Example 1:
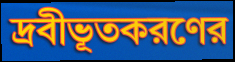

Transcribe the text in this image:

দ্রবীভূতকরণের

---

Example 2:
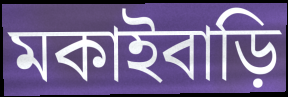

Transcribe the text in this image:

মকাইবাড়ি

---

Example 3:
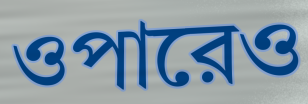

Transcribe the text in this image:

ওপারেও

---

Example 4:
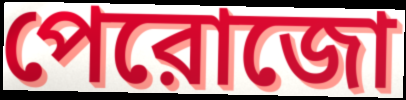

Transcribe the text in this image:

পেরোজো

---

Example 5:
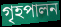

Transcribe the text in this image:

গৃহপালন